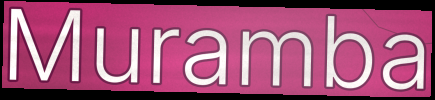
Muramba